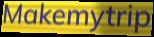
Makemytrip